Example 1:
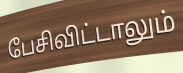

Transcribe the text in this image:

பேசிவிட்டாலும்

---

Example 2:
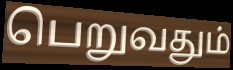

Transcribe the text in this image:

பெறுவதும்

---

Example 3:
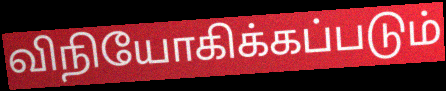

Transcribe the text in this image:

விநியோகிக்கப்படும்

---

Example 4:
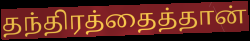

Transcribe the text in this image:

தந்திரத்தைத்தான்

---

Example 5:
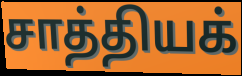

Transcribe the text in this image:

சாத்தியக்